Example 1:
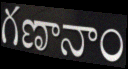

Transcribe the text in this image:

గణానాం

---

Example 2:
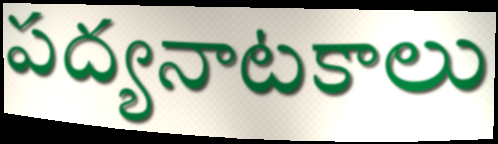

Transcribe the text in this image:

పద్యనాటకాలు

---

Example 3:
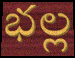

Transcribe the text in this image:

భల్ల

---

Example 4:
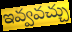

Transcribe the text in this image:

ఇవ్వవచ్చు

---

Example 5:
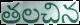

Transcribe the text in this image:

తలచిన